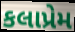
કલાપ્રેમ